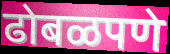
ढोबळपणे